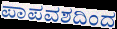
ಪಾಪವಶದಿಂದ